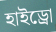
হাইড্রো